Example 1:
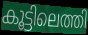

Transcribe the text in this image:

കൂട്ടിലെത്തി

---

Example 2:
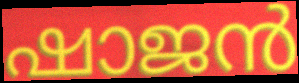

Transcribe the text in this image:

ഷാജൻ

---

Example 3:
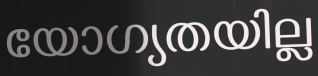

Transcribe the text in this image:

യോഗ്യതയില്ല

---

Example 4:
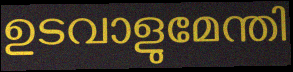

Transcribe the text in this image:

ഉടവാളുമേന്തി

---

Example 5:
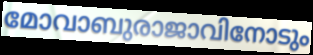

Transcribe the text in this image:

മോവാബുരാജാവിനോടും